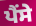
ਪੈਂਸੇ